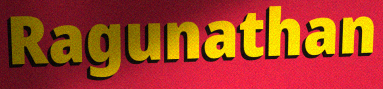
Ragunathan